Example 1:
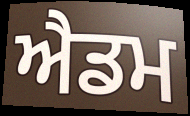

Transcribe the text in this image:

ਐਡਮ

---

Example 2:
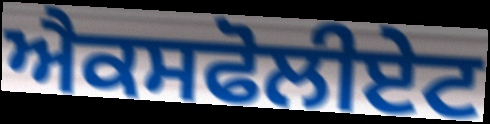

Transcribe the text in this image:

ਐਕਸਫੋਲੀਏਟ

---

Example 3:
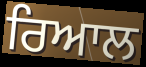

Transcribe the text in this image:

ਰਿਆਲ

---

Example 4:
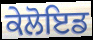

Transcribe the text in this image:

ਕੇਲੋਇਡ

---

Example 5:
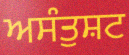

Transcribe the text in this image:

ਅਸੰਤੁਸ਼ਟ